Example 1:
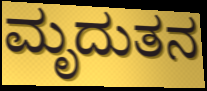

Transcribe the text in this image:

ಮೃದುತನ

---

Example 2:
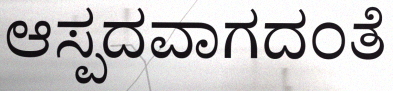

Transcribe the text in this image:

ಆಸ್ಪದವಾಗದಂತೆ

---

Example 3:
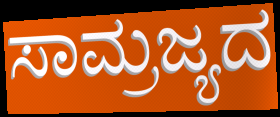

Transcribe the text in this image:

ಸಾಮ್ರಜ್ಯದ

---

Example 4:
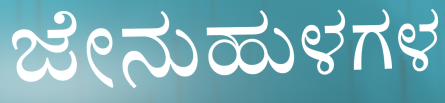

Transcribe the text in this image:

ಜೇನುಹುಳಗಳ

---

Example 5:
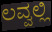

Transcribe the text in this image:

ಲವ್ವಲ್ಲಿ